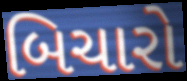
બિચારો